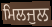
ਮਿਲਜੁਲ